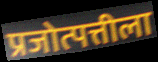
प्रजोत्पत्तीला